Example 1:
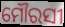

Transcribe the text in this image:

ମୌରସୀ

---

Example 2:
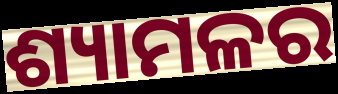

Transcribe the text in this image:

ଶ୍ୟାମଳର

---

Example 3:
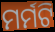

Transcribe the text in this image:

ମର୍ମଟି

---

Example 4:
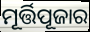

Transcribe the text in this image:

ମୂର୍ତ୍ତିପୂଜାର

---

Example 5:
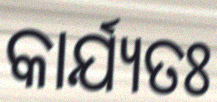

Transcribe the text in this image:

କାର୍ଯ୍ୟତଃ